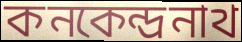
কনকেন্দ্রনাথ